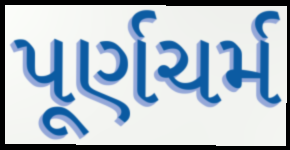
પૂર્ણચર્મ